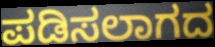
ಪಡಿಸಲಾಗದ